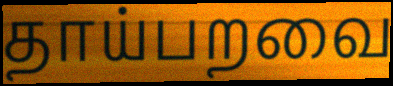
தாய்பறவை